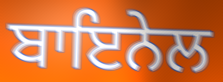
ਬਾਇਨੇਲ